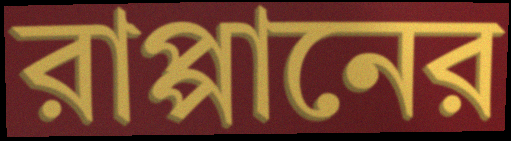
রাপ্পানের